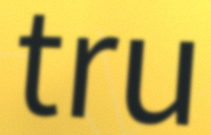
tru